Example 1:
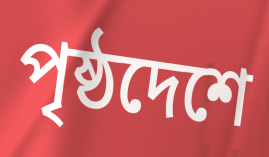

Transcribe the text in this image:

পৃষ্ঠদেশে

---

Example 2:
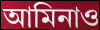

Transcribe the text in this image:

আমিনাও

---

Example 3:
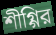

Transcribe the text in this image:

শীগ্গির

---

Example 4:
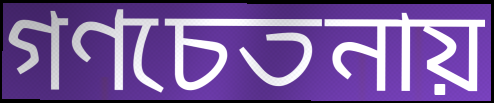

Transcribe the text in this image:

গণচেতনায়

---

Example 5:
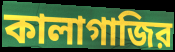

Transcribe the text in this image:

কালাগাজির